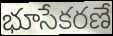
భూసేకరణే